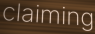
claiming